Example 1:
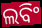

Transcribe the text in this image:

ଲବିଂ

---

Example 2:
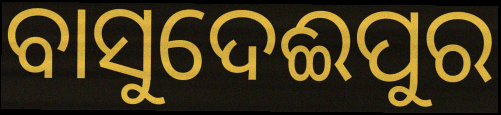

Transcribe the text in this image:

ବାସୁଦେଈପୁର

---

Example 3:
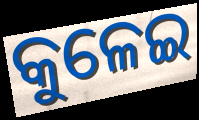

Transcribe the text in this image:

କୁଳେଇ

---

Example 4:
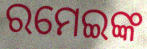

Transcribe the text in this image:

ରମେଇଙ୍କ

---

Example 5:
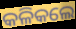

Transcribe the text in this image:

କଳିକଲେ